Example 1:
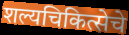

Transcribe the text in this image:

शल्यचिकित्सेचे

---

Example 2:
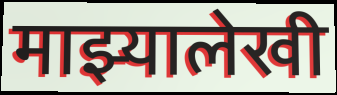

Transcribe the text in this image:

माझ्यालेखी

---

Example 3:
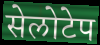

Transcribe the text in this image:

सेलोटेप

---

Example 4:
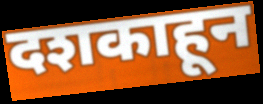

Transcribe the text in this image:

दशकाहून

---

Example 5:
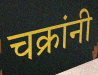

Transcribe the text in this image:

चक्रांनी